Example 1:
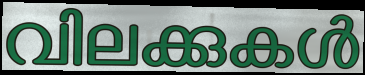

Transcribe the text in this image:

വിലക്കുകൾ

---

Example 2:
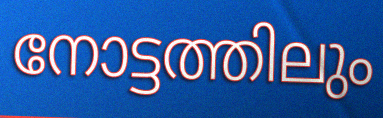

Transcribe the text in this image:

നോട്ടത്തിലും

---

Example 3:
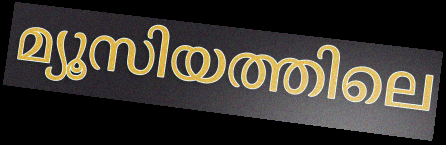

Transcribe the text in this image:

മ്യൂസിയത്തിലെ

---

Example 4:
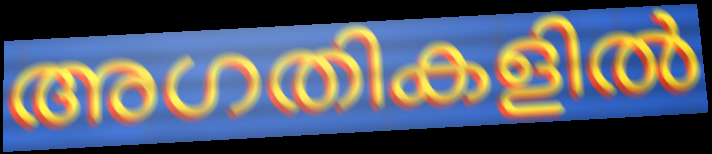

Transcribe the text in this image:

അഗതികളിൽ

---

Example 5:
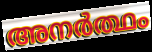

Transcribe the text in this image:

അനർത്ഥം